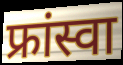
फ्रांस्वा